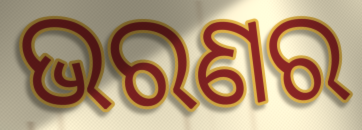
ଭରଣର